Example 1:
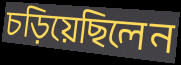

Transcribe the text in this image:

চড়িয়েছিলেন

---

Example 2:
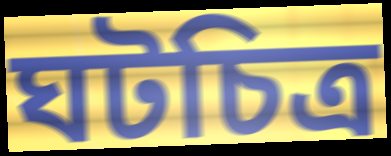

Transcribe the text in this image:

ঘটচিত্র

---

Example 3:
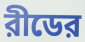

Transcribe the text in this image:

রীডের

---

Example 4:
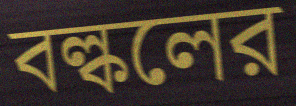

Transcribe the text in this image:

বল্কলের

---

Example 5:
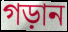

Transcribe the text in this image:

গড়ান